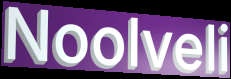
Noolveli